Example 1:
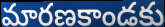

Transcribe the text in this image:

మారణకాండకు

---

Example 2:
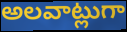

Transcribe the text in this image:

అలవాట్లుగా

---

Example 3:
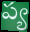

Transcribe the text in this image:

ప్య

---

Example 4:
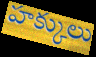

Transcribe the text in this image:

హక్కులు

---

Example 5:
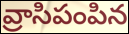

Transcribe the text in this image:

వ్రాసిపంపిన